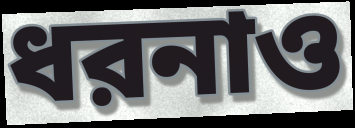
ধরনাও